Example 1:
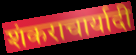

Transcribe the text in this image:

शंकराचार्यादी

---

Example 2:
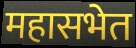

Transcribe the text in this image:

महासभेत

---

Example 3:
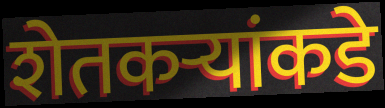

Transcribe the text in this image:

शेतकर्‍यांकडे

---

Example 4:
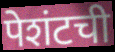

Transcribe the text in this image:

पेशंटची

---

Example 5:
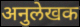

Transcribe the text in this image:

अनुलेखक